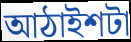
আঠাইশটা